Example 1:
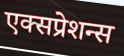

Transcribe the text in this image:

एक्सप्रेशन्स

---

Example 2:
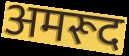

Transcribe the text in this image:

अमरूद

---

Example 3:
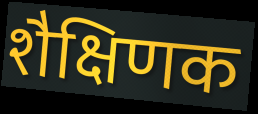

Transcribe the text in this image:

शैक्षिणक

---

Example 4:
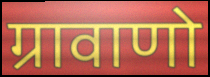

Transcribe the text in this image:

ग्रावाणो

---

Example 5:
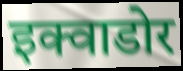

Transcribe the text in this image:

इक्‍वाडोर